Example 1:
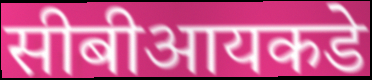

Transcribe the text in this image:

सीबीआयकडे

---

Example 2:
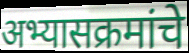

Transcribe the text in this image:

अभ्यासक्रमांचे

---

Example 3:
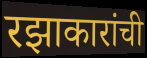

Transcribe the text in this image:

रझाकारांची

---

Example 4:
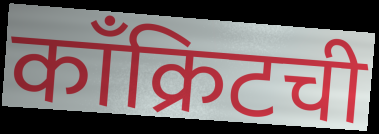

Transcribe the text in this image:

काँक्रिटची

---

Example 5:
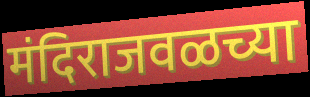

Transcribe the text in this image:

मंदिराजवळच्या